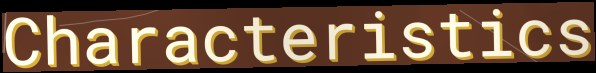
Characteristics